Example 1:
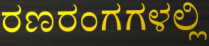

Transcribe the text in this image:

ರಣರಂಗಗಳಲ್ಲಿ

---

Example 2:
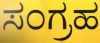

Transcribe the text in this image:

ಸಂಗ್ರಹ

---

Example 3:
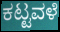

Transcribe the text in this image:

ಕಟ್ಟವಳೆ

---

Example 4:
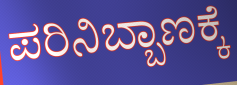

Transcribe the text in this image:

ಪರಿನಿಬ್ಬಾಣಕ್ಕೆ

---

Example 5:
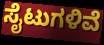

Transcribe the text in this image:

ಸೈಟುಗಳಿವೆ